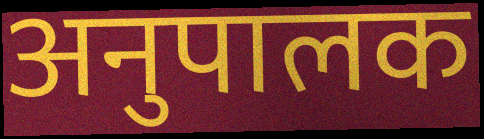
अनुपालक